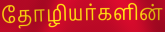
தோழியர்களின்